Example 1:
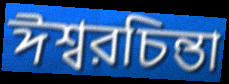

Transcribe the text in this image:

ঈশ্বরচিন্তা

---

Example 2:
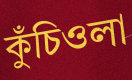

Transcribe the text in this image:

কুঁচিওলা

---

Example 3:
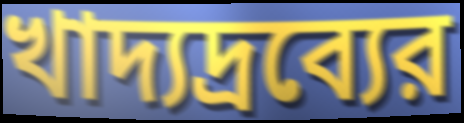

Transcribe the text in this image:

খাদ্যদ্রব্যের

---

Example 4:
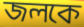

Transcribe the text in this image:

জলকে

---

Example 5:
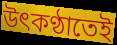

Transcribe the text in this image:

উৎকণ্ঠাতেই